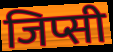
जिप्सी